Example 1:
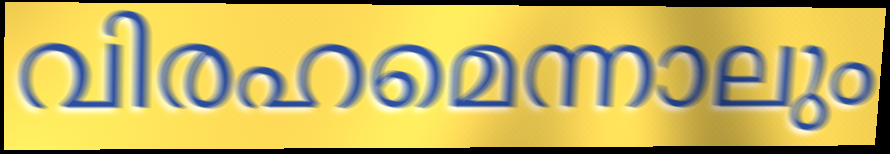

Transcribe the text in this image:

വിരഹമെന്നാലും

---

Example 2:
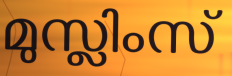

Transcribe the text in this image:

മുസ്ലിംസ്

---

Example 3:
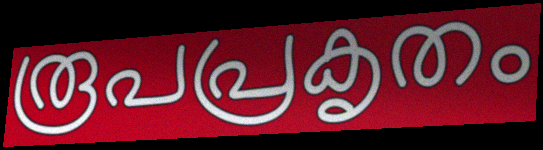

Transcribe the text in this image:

രൂപപ്രകൃതം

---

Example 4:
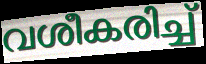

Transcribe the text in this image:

വശീകരിച്ച്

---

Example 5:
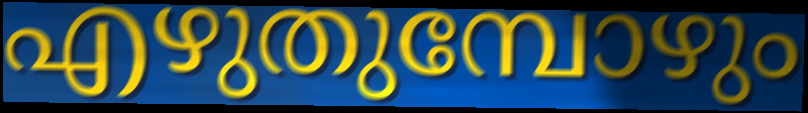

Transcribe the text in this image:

എഴുതുമ്പോഴും